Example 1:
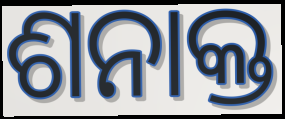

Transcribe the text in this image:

ଶନାକ୍ତ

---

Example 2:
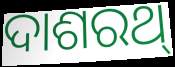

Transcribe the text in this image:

ଦାଶରଥ୍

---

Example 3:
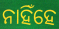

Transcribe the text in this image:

ନାହିଁହେ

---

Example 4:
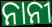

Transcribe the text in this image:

ନାନୀ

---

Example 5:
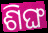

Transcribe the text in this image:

ଶିଙ୍ଘ